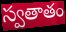
స్వతాతం